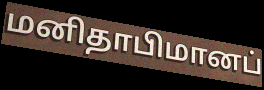
மனிதாபிமானப்